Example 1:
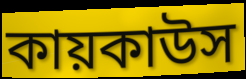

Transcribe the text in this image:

কায়কাউস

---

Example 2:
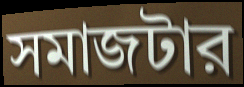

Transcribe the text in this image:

সমাজটার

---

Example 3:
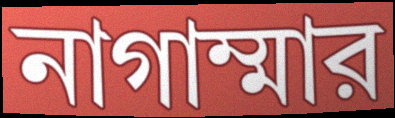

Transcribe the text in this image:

নাগাম্মার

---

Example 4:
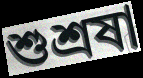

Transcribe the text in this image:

শুশ্রষা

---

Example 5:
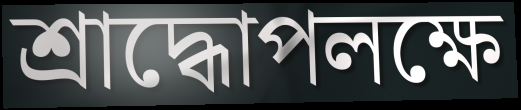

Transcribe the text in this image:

শ্রাদ্ধোপলক্ষে